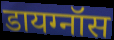
डायग्नॉस